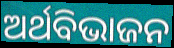
ଅର୍ଥବିଭାଜନ